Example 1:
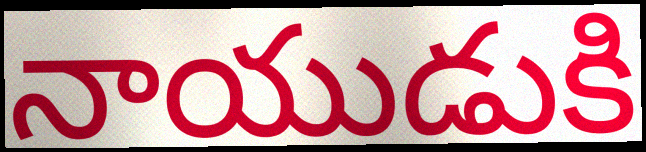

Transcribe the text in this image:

నాయుడుకి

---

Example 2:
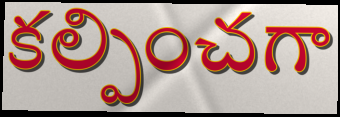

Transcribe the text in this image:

కల్పించగా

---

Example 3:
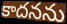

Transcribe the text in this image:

కాదనను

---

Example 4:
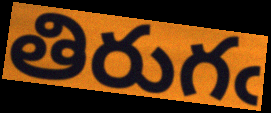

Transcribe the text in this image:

తిరుగఁ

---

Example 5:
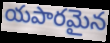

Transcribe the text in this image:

యపారమైన